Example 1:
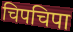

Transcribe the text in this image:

चिपचिपा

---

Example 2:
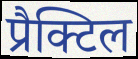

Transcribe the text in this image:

प्रैक्टिल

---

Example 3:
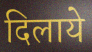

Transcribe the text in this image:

दिलाये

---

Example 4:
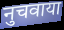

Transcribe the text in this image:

नुचवाया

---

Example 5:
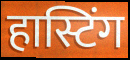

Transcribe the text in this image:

हास्टिंग